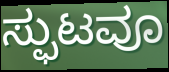
ಸ್ಫುಟವೂ